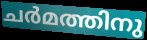
ചർമത്തിനു